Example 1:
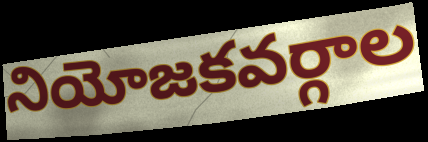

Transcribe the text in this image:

నియోజకవర్గాల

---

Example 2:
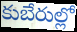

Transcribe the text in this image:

కుబేరుల్లో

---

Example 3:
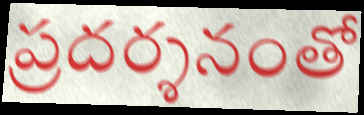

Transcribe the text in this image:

ప్రదర్శనంతో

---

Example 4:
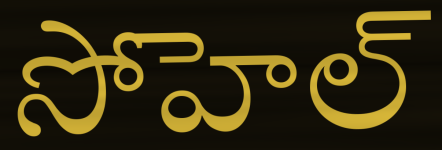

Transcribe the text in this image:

సోహెల్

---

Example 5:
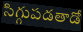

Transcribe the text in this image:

సిగ్గుపడతాడో